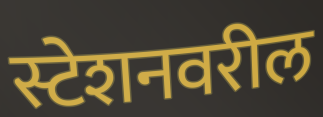
स्टेशनवरील